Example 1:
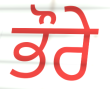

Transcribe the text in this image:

ਭੌਰੇ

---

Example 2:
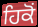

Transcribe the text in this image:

ਹਿਕੋਂ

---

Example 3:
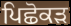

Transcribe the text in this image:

ਪਿਛੋਕੜ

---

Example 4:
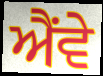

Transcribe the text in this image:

ਐਂਵੇ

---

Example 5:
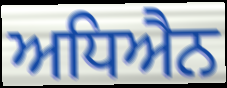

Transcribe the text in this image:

ਅਧਿਐਨ